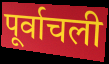
पूर्वाचली